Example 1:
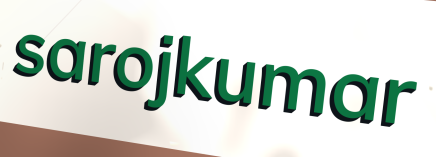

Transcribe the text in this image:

sarojkumar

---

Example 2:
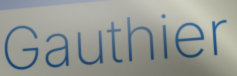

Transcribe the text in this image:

Gauthier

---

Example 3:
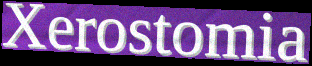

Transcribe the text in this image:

Xerostomia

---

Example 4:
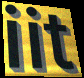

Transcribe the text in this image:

iit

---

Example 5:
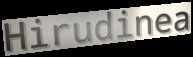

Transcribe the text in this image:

Hirudinea